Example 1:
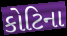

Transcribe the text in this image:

કોટિના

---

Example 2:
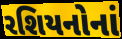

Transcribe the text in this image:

રશિયનોનાં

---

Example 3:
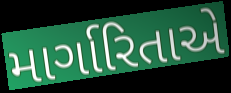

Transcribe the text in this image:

માર્ગારિતાએ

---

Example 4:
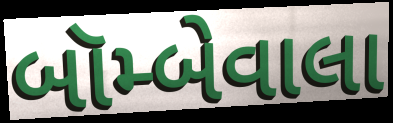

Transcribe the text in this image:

બૉમ્બેવાલા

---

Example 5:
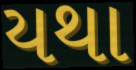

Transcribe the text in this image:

યથા